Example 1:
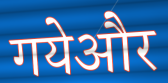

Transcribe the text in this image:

गयेऔर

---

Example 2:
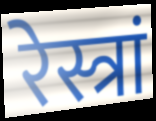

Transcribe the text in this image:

रेस्त्रां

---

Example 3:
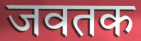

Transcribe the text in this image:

जवतक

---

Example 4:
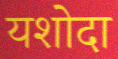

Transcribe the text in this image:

यशोदा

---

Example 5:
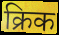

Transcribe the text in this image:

क्रिक